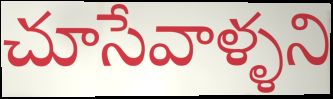
చూసేవాళ్ళని